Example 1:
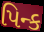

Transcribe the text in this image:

પિન્ક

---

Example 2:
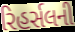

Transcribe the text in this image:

રિહર્સલની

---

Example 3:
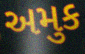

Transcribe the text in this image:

અમુક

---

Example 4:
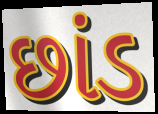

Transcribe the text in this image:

છાંડ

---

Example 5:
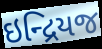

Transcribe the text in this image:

ઇન્દ્રિયજ